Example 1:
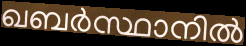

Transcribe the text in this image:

ഖബർസ്ഥാനിൽ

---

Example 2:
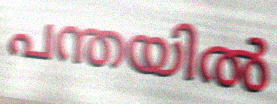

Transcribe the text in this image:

പന്തയിൽ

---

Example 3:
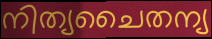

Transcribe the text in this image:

നിത്യചൈതന്യ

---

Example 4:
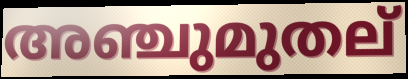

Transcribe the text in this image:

അഞ്ചുമുതല്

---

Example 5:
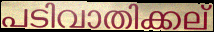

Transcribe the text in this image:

പടിവാതിക്കല്